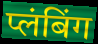
प्लंबिंग